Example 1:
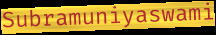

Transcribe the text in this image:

Subramuniyaswami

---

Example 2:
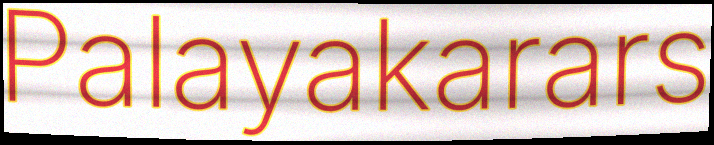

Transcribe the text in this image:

Palayakarars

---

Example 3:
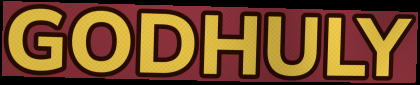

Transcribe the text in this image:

GODHULY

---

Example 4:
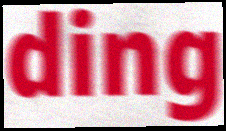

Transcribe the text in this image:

ding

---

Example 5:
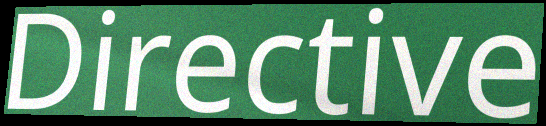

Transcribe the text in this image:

Directive